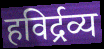
हविर्द्रव्य